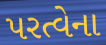
પરત્વેના